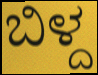
ಬಿಳ್ದ